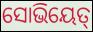
ସୋଭିୟେତ୍